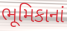
ભૂમિકાનાં